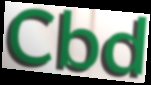
Cbd